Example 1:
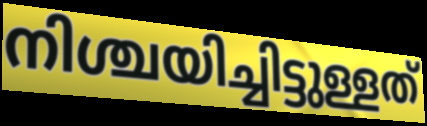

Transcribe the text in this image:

നിശ്ചയിച്ചിട്ടുള്ളത്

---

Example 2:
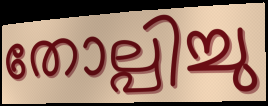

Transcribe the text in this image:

തോല്പിച്ചു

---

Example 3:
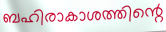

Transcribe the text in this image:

ബഹിരാകാശത്തിന്റെ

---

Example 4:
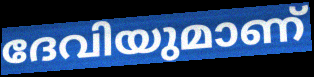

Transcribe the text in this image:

ദേവിയുമാണ്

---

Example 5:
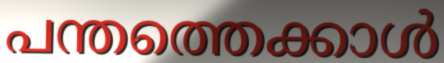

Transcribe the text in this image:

പന്തത്തെക്കാൾ